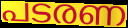
പടരണ